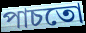
পাচতো